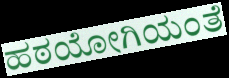
ಹಠಯೋಗಿಯಂತೆ